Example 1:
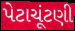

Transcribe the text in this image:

પેટાચૂંટણી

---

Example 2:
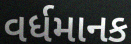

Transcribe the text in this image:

વર્ધમાનક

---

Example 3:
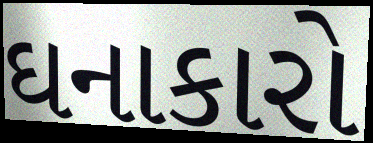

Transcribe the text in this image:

ઘનાકારો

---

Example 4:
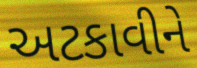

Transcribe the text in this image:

અટકાવીને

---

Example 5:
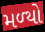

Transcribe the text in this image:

મળ્‍યો